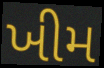
ખીમ